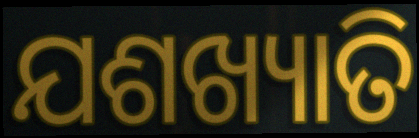
ଯଶଖ୍ୟାତି